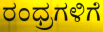
ರಂಧ್ರಗಳಿಗೆ